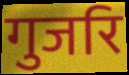
गुजरि